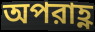
অপরাহ্ণ